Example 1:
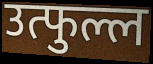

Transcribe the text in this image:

उत्फुल्ल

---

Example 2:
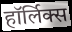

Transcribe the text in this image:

हॉर्लिक्‍स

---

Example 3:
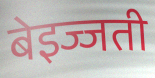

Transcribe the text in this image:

बेइज्‍जती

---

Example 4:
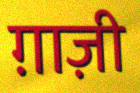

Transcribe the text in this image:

ग़ाज़ी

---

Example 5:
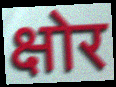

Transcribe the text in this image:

क्षोर